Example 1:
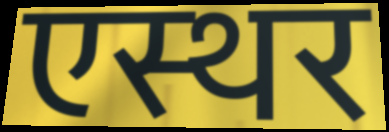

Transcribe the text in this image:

एस्थर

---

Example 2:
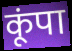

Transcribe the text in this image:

कूंपा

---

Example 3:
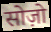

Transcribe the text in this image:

सोज़ो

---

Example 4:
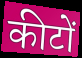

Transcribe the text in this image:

कीटों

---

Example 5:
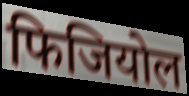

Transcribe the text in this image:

फिजियोल